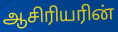
ஆசிரியரின்